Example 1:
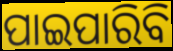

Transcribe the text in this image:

ପାଇପାରିବି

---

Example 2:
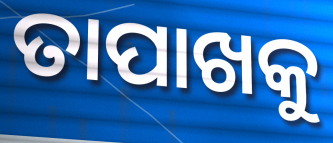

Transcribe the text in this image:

ତାପାଖକୁ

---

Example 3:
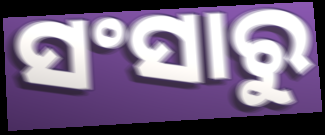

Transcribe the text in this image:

ସଂସାରୁ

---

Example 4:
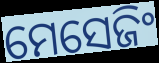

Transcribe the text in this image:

ମେସେଜିଂ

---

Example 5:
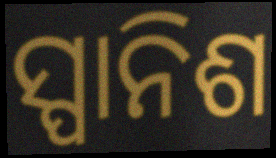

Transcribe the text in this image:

ସ୍ପାନିଶ